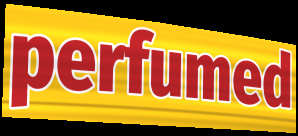
perfumed